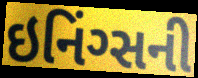
ઇનિંગ્સની